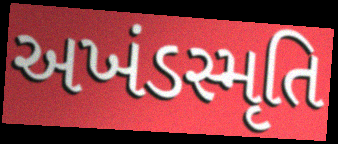
અખંડસ્મૃતિ